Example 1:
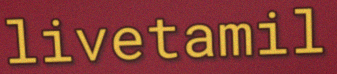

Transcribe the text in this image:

livetamil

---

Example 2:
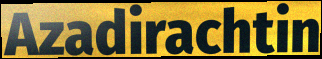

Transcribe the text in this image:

Azadirachtin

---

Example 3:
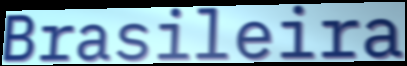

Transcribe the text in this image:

Brasileira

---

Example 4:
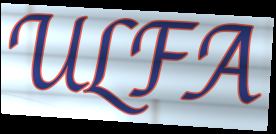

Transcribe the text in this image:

ULFA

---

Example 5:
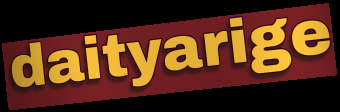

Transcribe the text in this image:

daityarige